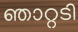
ഞാറ്റടി